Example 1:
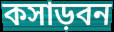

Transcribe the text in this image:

কসাড়বন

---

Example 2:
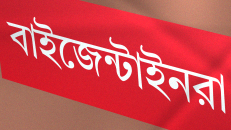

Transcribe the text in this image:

বাইজেন্টাইনরা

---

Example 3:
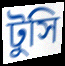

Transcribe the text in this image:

টুসি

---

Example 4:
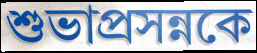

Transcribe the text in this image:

শুভাপ্রসন্নকে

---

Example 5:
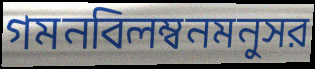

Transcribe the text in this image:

গমনবিলম্বনমনুসর